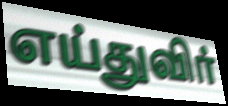
எய்துவிர்